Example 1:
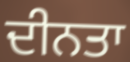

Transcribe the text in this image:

ਦੀਨਤਾ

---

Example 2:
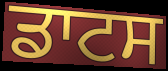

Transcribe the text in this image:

ਡਾਟਸ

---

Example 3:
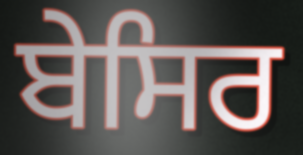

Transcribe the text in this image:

ਬੇਸਿਰ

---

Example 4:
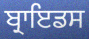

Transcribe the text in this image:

ਬ੍ਰਾਇਡਸ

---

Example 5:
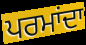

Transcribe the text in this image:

ਪਰਮਾਂਦਾ